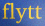
flytt